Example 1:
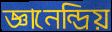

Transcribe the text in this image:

জ্ঞানেন্দ্রিয়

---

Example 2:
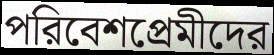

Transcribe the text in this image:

পরিবেশপ্রেমীদের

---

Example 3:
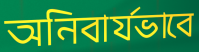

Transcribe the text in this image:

অনিবার্যভাবে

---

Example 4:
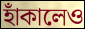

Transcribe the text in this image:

হাঁকালেও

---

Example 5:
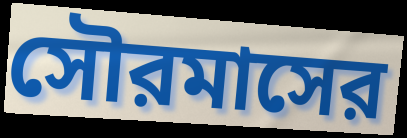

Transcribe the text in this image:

সৌরমাসের